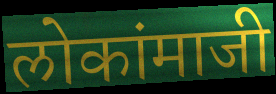
लोकांमाजी